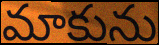
మాకును